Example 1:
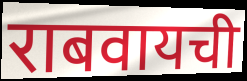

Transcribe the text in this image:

राबवायची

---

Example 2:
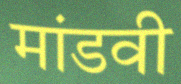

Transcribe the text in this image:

मांडवी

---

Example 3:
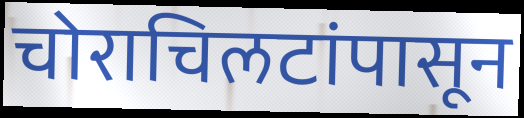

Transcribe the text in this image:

चोराचिलटांपासून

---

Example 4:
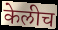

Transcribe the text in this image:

केलीच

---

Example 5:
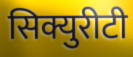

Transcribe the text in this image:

सिक्युरीटी